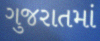
ગુજરાતમાં